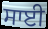
ਸਾਈ